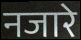
नजारे